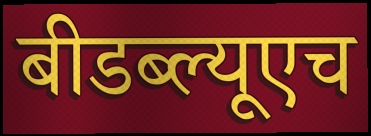
बीडब्ल्यूएच